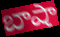
బాషా